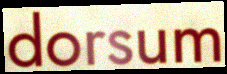
dorsum